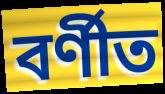
বর্ণীত